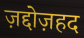
ज़द्दोज़हद